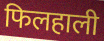
फिलहाली